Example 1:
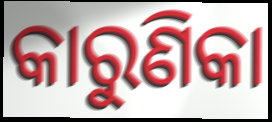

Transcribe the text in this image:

କାରୁଣିକା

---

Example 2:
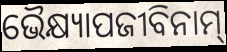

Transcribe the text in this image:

ଭୈକ୍ଷ୍ୟାପଜୀବିନାମ୍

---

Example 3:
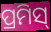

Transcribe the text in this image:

ପ୍ରମିସ୍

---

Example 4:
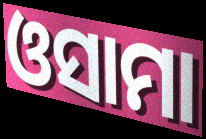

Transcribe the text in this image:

ଓସାମା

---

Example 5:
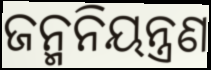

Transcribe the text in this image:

ଜନ୍ମନିୟନ୍ତ୍ରଣ